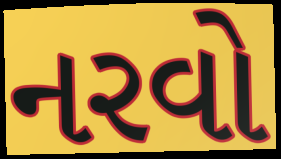
નરવો